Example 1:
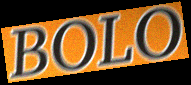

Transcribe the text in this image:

BOLO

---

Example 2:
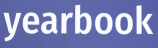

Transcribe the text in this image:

yearbook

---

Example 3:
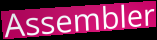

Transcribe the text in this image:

Assembler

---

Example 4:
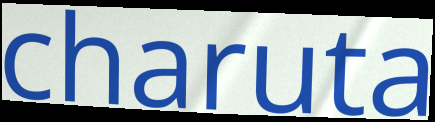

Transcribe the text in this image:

charuta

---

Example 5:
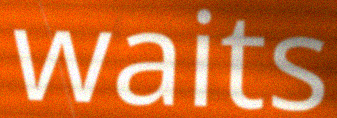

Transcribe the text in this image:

waits